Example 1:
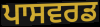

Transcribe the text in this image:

ਪਾਸਵਰਡ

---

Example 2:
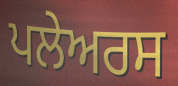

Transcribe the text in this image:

ਪਲੇਅਰਸ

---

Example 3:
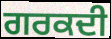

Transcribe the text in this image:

ਗਰਕਦੀ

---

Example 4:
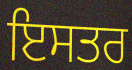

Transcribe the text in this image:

ਇਸਤਰ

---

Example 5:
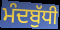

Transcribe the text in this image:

ਮੰਦਬੁੱਧੀ